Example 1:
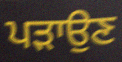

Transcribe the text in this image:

ਪੜਾਉਣ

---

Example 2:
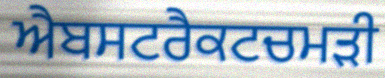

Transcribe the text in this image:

ਐਬਸਟਰੈਕਟਚਮੜੀ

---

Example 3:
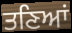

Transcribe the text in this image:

ਤਣਿਆਂ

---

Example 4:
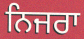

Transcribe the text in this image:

ਨਿਜਰਾ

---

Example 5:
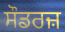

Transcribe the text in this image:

ਸੌਡਰਜ਼